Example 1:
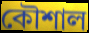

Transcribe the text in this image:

কৌশাল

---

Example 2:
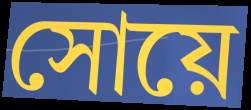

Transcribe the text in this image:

সোয়ে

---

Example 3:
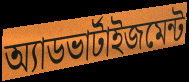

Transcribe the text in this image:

অ্যাডভার্টাইজমেন্ট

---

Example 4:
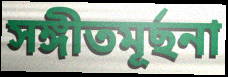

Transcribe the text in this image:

সঙ্গীতমূর্ছনা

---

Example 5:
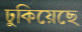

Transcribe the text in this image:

ঢুকিয়েছে